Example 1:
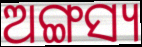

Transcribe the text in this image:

ଅଙ୍ଗସ୍ୟ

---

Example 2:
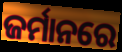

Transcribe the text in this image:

ଜର୍ମାନରେ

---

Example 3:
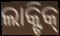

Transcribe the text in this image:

ଲାକ୍ଟିକ୍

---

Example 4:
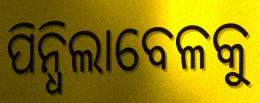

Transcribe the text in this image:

ପିନ୍ଧିଲାବେଳକୁ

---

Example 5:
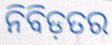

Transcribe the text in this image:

ନିବିଡ଼ତର